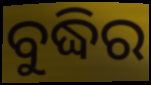
ବୁଦ୍ଧିର